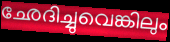
ഛേദിച്ചുവെങ്കിലും